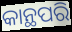
କାନ୍ଥପରି